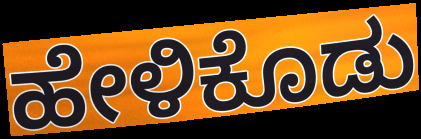
ಹೇಳಿಕೊಡು